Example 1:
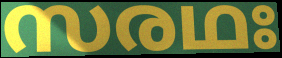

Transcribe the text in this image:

സരഥഃ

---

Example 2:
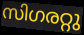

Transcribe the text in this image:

സിഗരറ്റു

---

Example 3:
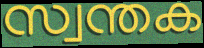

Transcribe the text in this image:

സ്വന്തക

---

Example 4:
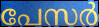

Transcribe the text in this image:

പേസർ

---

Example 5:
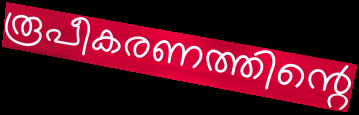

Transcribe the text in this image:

രൂപീകരണത്തിന്റെ